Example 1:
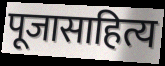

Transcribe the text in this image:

पूजासाहित्य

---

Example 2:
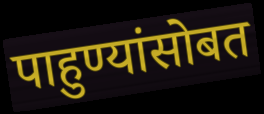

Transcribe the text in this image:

पाहुण्यांसोबत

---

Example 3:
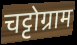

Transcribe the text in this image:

चट्टोग्राम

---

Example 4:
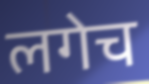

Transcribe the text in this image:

लगेच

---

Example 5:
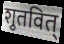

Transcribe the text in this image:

श्रुतवित्